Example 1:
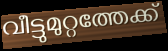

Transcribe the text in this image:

വീട്ടുമുറ്റത്തേക്ക്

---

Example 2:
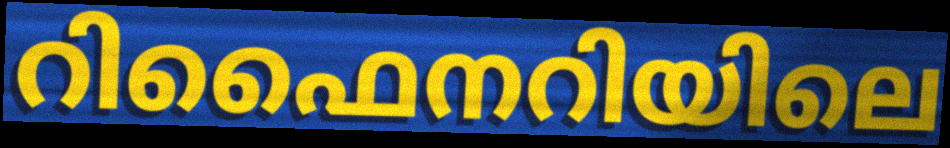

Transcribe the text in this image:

റിഫൈനറിയിലെ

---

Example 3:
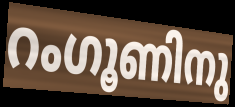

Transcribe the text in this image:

റംഗൂണിനു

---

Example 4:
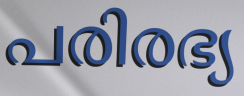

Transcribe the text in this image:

പരിരഭ്യ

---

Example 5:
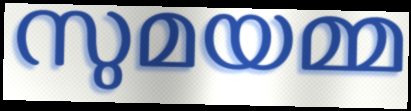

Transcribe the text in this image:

സുമയമ്മ